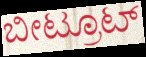
ಬೀಟ್ರೂಟ್